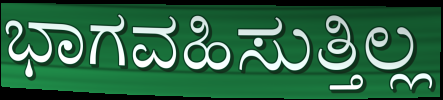
ಭಾಗವಹಿಸುತ್ತಿಲ್ಲ